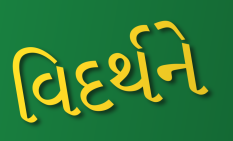
વિદર્થને